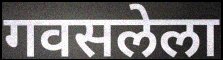
गवसलेला